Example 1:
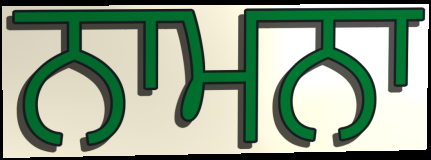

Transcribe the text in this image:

ਨਾਮਨਾ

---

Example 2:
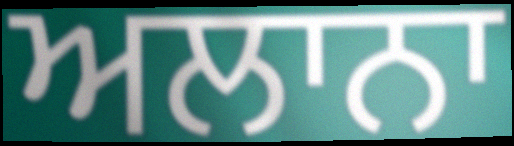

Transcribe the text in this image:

ਅਲਾਨਾ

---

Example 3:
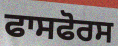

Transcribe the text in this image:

ਫਾਸਫੋਰਸ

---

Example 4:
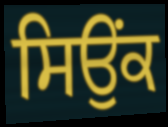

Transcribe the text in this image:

ਸਿਉਂਕ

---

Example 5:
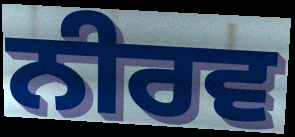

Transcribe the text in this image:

ਨੀਰਵ